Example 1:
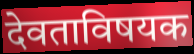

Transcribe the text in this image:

देवताविषयक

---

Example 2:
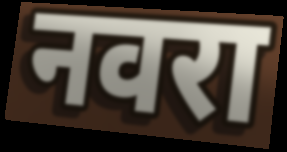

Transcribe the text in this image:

नवरा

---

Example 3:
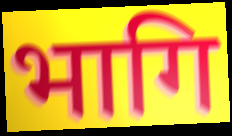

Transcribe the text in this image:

भागि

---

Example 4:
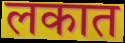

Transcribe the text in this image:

लकात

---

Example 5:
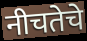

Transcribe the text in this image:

नीचतेचे